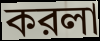
করলা